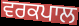
ਵਰਕਪਾਲ